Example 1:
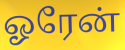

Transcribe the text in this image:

ஓரேன்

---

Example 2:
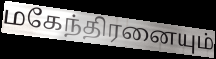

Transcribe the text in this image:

மகேந்திரனையும்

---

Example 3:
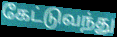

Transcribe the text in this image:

கேட்டுவந்து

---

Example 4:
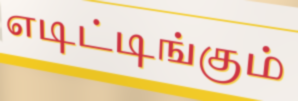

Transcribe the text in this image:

எடிட்டிங்கும்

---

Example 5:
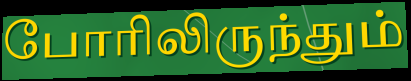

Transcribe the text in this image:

போரிலிருந்தும்